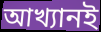
আখ্যানই